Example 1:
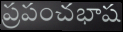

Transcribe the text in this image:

ప్రపంచభాష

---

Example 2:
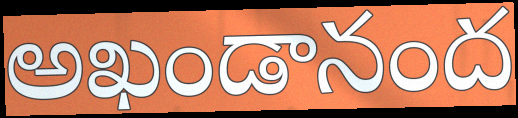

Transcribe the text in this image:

అఖండానంద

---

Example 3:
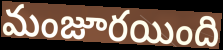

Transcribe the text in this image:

మంజూరయింది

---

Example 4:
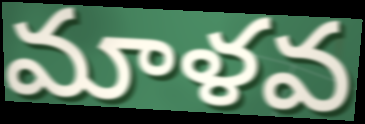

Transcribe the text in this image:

మాళవ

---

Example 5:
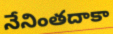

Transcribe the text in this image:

నేనింతదాకా